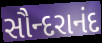
સૌન્દરાનંદ